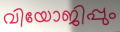
വിയോജിപ്പും